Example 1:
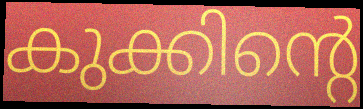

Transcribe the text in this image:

കുക്കിന്റെ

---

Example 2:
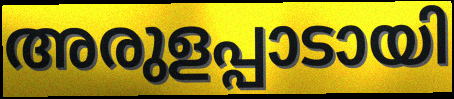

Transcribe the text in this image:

അരുളപ്പാടായി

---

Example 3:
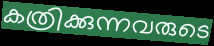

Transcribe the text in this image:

കത്രിക്കുന്നവരുടെ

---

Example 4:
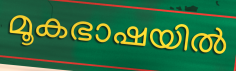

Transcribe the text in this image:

മൂകഭാഷയിൽ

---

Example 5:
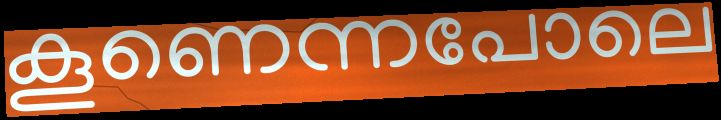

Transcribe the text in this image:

കൂണെന്നപോലെ